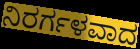
ನಿರರ್ಗಳವಾದ